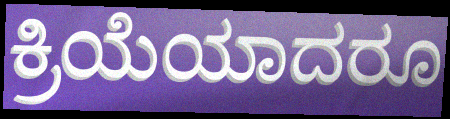
ಕ್ರಿಯೆಯಾದರೂ